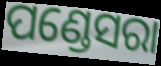
ପଣ୍ଡେସରା